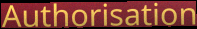
Authorisation